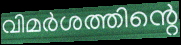
വിമർശത്തിന്റെ